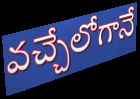
వచ్చేలోగానే